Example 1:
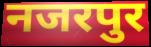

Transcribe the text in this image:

नजरपुर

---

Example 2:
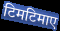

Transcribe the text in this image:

टिमटिमाए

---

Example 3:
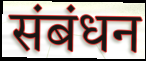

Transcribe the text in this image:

संबंधन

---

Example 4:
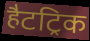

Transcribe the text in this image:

हैटट्रिक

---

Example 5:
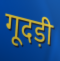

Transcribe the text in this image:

गूदड़ी